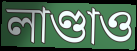
লাণ্ডাও